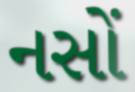
નસોં